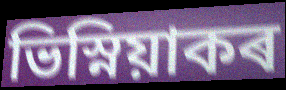
ভিস্নিয়াকৰ